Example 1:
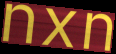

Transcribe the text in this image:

nxn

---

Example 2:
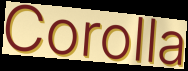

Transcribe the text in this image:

Corolla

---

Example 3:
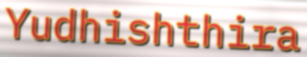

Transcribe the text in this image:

Yudhishthira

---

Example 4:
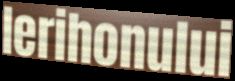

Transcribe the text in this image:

Ierihonului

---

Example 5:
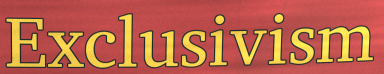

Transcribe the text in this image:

Exclusivism